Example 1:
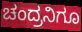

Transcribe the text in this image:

ಚಂದ್ರನಿಗೂ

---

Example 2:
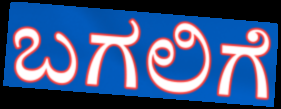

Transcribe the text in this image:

ಬಗಲಿಗೆ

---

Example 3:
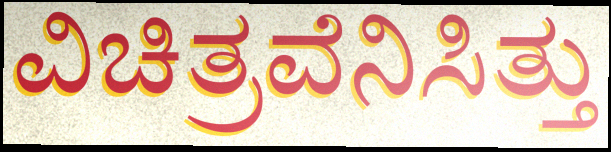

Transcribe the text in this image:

ವಿಚಿತ್ರವೆನಿಸಿತ್ತು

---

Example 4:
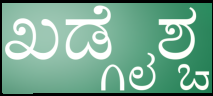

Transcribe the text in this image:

ಖಡ್ಗೈಶ್ಚ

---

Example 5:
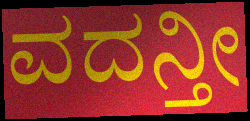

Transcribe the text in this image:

ವದನ್ತೀ